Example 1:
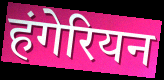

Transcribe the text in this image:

हंगेरियन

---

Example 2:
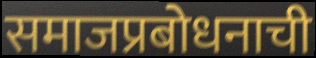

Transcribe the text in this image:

समाजप्रबोधनाची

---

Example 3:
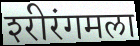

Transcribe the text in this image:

श्रीरंगमला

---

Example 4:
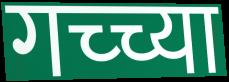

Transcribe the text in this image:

गच्च्या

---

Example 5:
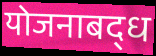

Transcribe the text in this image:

योजनाबद्ध